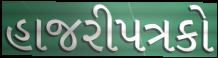
હાજરીપત્રકો